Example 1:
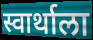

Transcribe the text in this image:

स्वार्थाला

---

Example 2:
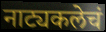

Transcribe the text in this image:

नाट्यकलेचं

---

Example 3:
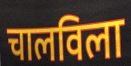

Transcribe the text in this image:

चालविला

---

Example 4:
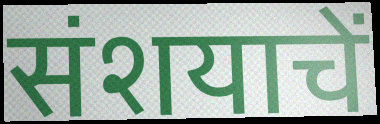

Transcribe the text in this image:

संशयाचें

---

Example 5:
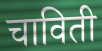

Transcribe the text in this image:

चाविती